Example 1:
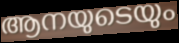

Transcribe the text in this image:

ആനയുടെയും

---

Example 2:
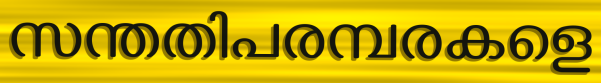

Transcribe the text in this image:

സന്തതിപരമ്പരകളെ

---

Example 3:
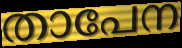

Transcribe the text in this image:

താപേന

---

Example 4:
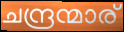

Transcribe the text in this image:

ചന്ദ്രന്മാര്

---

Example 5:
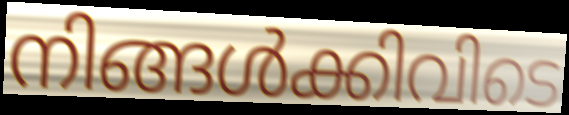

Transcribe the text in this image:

നിങ്ങൾക്കിവിടെ